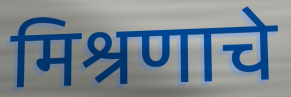
मिश्रणाचे